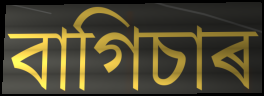
বাগিচাৰ